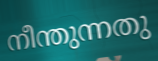
നീന്തുന്നതു